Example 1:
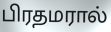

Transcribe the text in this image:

பிரதமரால்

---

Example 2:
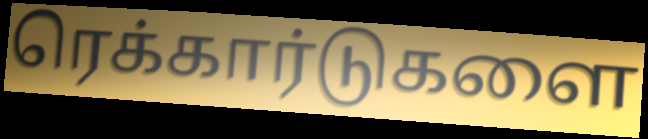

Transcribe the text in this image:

ரெக்கார்டுகளை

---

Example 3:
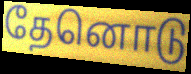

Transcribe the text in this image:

தேனொடு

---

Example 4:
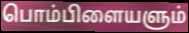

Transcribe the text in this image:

பொம்பிளையளும்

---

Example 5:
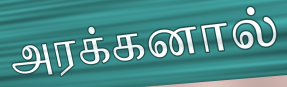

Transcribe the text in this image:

அரக்கனால்